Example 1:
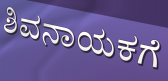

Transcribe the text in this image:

ಶಿವನಾಯಕಗೆ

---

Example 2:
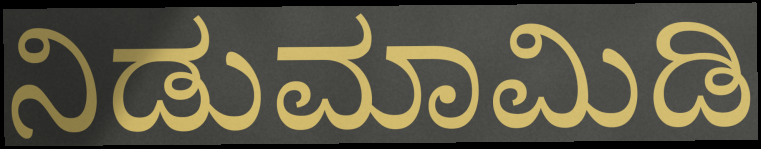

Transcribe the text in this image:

ನಿಡುಮಾಮಿಡಿ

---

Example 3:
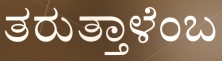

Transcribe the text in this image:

ತರುತ್ತಾಳೆಂಬ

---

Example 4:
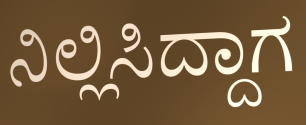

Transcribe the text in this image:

ನಿಲ್ಲಿಸಿದ್ದಾಗ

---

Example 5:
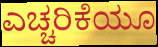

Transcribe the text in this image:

ಎಚ್ಚರಿಕೆಯೂ